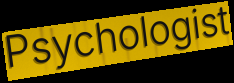
Psychologist